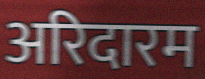
अरिदारम